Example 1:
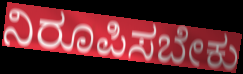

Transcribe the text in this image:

ನಿರೂಪಿಸಬೇಕು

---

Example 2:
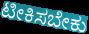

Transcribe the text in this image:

ಟೀಕಿಸಬೇಕು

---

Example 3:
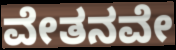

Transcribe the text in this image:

ವೇತನವೇ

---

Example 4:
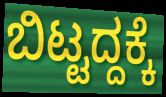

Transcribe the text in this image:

ಬಿಟ್ಟದ್ದಕ್ಕೆ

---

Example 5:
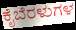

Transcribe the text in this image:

ಕೈಬೆರಳುಗಳ